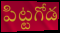
పిట్టగోడ